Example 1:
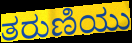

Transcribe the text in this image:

ತರುಣಿಯು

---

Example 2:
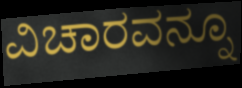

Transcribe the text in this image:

ವಿಚಾರವನ್ನೂ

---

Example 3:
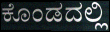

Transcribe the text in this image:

ಕೊಂಡದಲ್ಲಿ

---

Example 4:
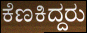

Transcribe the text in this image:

ಕೆಣಕಿದ್ದರು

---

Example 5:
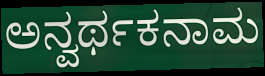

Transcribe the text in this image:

ಅನ್ವರ್ಥಕನಾಮ